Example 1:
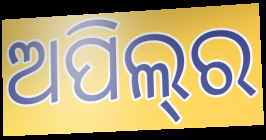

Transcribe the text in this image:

ଅପିଲ୍‌ର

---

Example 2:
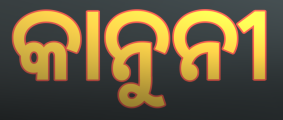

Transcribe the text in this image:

କାନୁନୀ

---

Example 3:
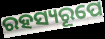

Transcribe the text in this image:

ରହସ୍ୟରୂପେ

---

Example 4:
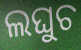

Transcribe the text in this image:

ଲଘୁଚ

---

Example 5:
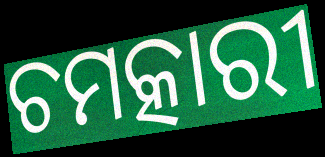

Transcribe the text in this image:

ଚମତ୍କାରୀ